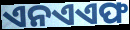
ଏନଏଏଫ